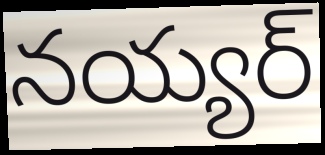
నయ్యర్